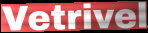
Vetrivel